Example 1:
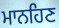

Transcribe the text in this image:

ਮਾਨਹਿਣ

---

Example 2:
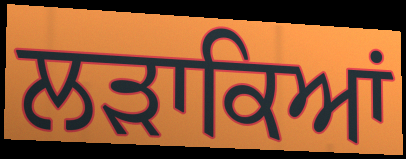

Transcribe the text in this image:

ਲੜਾਕਿਆਂ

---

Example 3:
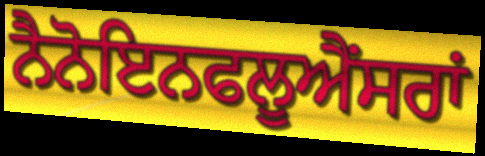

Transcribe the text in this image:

ਨੈਨੋਇਨਫਲੂਐਂਸਰਾਂ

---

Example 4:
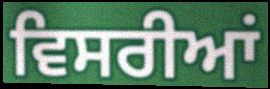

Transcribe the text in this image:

ਵਿਸਰੀਆਂ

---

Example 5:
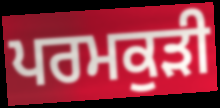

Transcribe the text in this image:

ਪਰਮਕੁੜੀ